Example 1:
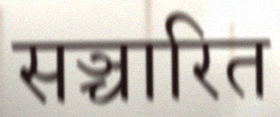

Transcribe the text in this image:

सञ्चारित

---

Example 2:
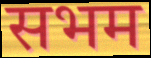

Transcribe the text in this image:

सभम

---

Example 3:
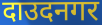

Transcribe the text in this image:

दाउदनगर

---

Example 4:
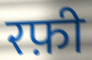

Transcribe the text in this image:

रफ़ी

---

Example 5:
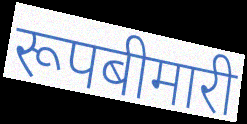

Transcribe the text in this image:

रूपबीमारी